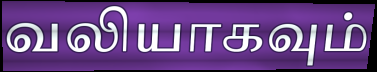
வலியாகவும்